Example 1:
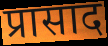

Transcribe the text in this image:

प्रासाद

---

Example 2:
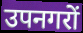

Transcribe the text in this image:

उपनगरों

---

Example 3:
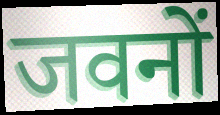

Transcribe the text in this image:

जवनों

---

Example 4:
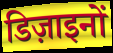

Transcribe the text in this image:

डिज़ाइनों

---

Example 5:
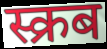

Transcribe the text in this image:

स्क्रब